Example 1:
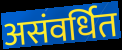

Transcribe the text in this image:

असंवर्धित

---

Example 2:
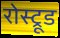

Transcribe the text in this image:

रोस्ट्रूड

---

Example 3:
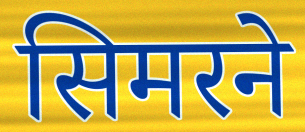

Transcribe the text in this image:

सिमरने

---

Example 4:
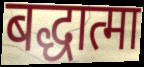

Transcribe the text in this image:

बद्धात्मा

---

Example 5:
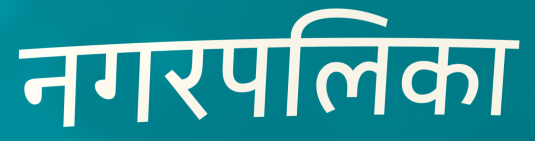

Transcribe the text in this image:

नगरपलिका